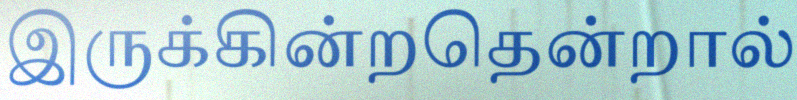
இருக்கின்றதென்றால்